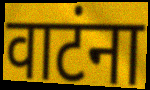
वाटंना